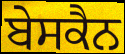
ਬੇਸਕੈਨ